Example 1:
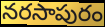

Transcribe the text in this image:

నరసాపురం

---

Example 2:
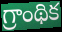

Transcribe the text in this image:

గ్రాంథిక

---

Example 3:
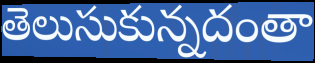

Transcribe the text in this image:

తెలుసుకున్నదంతా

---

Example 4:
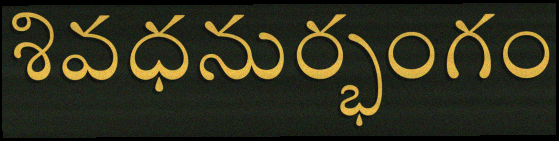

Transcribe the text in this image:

శివధనుర్భంగం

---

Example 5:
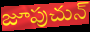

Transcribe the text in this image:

జూపుచున్